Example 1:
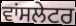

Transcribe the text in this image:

ਵਾਂਸਲੇਟਰ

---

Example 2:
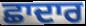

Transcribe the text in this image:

ਛਾਦਾਰ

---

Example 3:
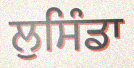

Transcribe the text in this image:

ਲੁਸਿੰਡਾ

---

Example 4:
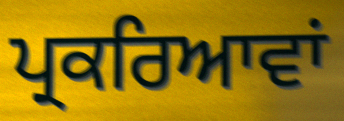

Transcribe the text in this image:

ਪ੍ਰਕਰਿਆਵਾਂ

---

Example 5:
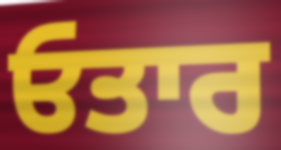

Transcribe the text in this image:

ਓਤਾਰ